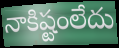
నాకిష్టంలేదు